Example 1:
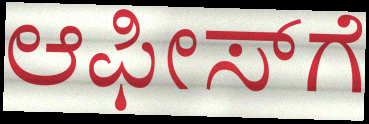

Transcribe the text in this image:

ಆಫೀಸ್‍ಗೆ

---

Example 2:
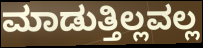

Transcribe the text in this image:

ಮಾಡುತ್ತಿಲ್ಲವಲ್ಲ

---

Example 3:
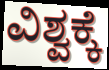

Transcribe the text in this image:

ವಿಶ್ವಕ್ಕೆ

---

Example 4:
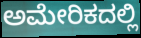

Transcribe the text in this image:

ಅಮೇರಿಕದಲ್ಲಿ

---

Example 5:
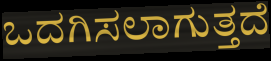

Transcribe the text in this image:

ಒದಗಿಸಲಾಗುತ್ತದೆ